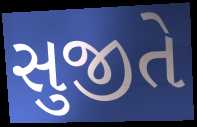
સુજીતે